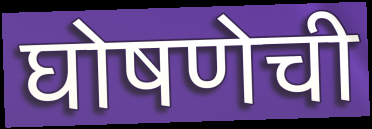
घोषणेची